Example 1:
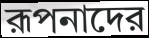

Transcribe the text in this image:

রূপনাদের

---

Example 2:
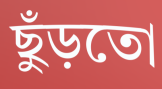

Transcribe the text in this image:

ছুঁড়তো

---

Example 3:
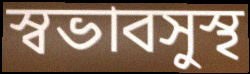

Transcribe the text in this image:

স্বভাবসুস্থ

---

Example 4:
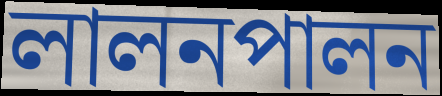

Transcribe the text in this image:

লালনপালন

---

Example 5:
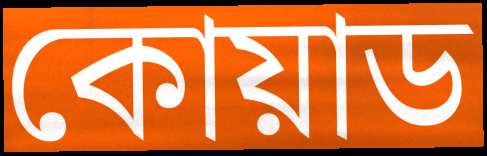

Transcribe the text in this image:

কোয়াড